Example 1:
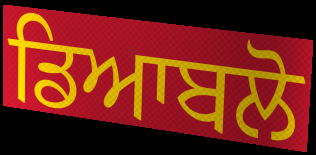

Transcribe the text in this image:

ਡਿਆਬਲੋ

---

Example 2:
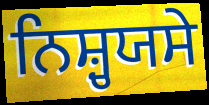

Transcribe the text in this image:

ਨਿਸ਼੍ਚਯਸੇ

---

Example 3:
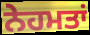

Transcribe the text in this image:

ਨੇਹਮਤਾਂ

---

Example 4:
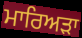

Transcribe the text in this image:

ਮਾਰਿਅੜਾ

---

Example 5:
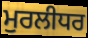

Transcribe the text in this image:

ਮੁਰਲੀਧਰ